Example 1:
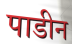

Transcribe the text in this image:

पाडीन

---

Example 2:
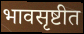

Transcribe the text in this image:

भावसृष्टीत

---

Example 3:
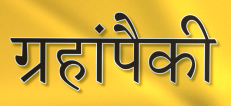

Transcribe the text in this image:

ग्रहांपैकी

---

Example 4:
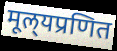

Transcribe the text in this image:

मूल्यप्रणित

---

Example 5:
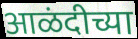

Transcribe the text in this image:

आळंदीच्या